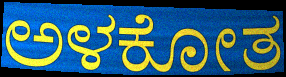
ಅಳಕೋತ